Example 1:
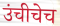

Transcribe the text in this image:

उंचीचेच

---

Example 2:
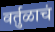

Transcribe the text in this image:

वर्तुळाचं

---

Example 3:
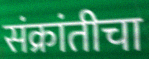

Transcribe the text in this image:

संक्रांतीचा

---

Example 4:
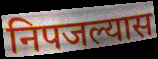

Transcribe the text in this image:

निपजल्यास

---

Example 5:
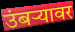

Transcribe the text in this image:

उंबर्‍यावर